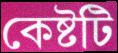
কেষ্টটি